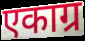
एकाग्र